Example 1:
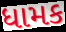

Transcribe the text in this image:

ધામક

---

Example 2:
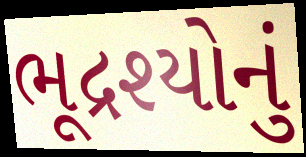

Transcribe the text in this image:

ભૂદ્રશ્યોનું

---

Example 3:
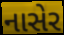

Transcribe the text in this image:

નાસેર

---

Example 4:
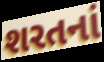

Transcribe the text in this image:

શરતનાં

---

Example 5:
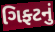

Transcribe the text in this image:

ગિફ્ટનું